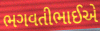
ભગવતીભાઈએ